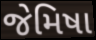
જેમિષા